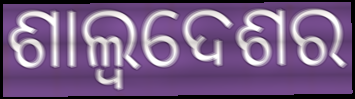
ଶାଲ୍ୱଦେଶର